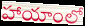
హాయాంలో